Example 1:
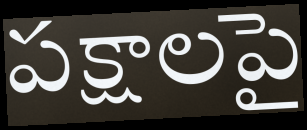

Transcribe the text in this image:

పక్షాలపై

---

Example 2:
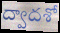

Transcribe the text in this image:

ద్వాదశో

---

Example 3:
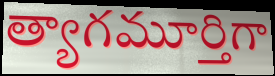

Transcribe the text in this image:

త్యాగమూర్తిగా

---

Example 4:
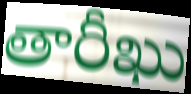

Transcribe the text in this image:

తారీఖు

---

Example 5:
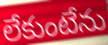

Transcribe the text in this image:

లేకుంటేను